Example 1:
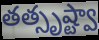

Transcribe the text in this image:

తత్సృష్ట్వా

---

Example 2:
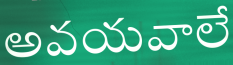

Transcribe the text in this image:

అవయవాలే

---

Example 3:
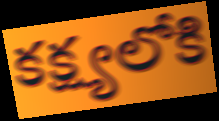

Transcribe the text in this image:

కక్ష్యలోకి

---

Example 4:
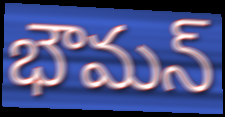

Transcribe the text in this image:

భౌమన్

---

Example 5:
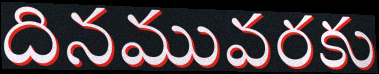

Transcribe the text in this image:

దినమువరకు